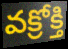
వక్రోక్తి